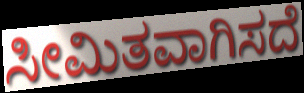
ಸೀಮಿತವಾಗಿಸದೆ